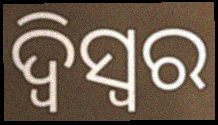
ଦ୍ଵିସ୍ଵର